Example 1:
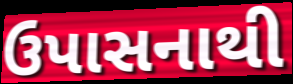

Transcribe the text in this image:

ઉપાસનાથી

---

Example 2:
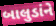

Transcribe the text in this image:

બાલુડાંને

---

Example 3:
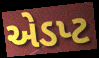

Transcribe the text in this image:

એડપ્ટ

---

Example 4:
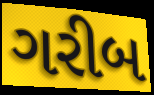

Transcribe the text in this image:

ગરીબ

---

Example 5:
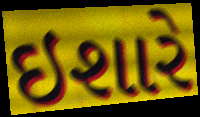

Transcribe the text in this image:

ઇશારે